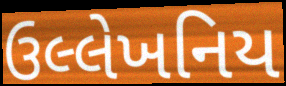
ઉલ્લેખનિય